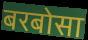
बरबोसा